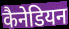
कैनेडियन